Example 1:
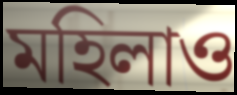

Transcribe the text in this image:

মহিলাও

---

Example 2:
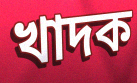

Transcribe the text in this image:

খাদক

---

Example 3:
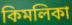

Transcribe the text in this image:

কিমলিকা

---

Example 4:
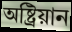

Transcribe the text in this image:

অষ্ট্ৰিয়ান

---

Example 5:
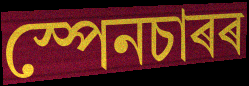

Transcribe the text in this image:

স্পেনচাৰৰ